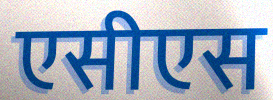
एसीएस